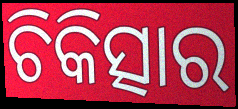
ଚିକିତ୍ସାର